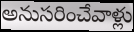
అనుసరించేవాళ్లు